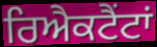
ਰਿਐਕਟੈਂਟਾਂ